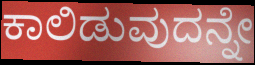
ಕಾಲಿಡುವುದನ್ನೇ